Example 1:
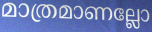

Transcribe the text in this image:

മാത്രമാണല്ലോ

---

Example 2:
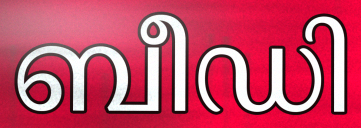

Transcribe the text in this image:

ബീഡി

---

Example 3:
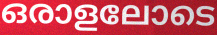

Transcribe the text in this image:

ഒരാളലോടെ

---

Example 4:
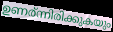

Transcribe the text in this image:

ഉണര്ന്നിരിക്കുകയും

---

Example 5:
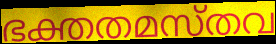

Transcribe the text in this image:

ഭക്തതമസ്തവ